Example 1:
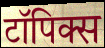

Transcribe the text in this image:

टॉपिक्स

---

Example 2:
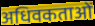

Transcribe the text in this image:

अधिवकताओं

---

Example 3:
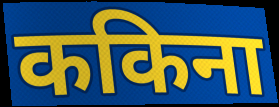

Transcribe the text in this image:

ककिना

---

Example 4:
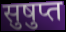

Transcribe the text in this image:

सुषुप्त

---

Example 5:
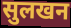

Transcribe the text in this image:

सुलखन